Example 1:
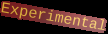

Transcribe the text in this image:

Experimental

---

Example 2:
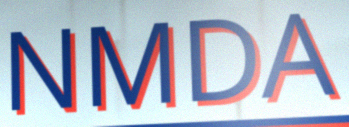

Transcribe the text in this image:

NMDA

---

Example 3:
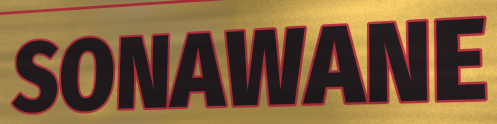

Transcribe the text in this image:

SONAWANE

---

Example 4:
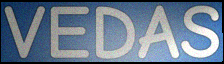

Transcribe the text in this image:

VEDAS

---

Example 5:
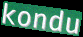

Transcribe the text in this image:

kondu